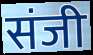
संजी